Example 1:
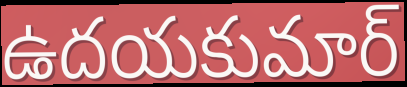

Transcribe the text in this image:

ఉదయకుమార్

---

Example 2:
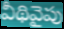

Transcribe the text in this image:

వీథివైపు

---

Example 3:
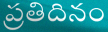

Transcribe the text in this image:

ప్రతిదినం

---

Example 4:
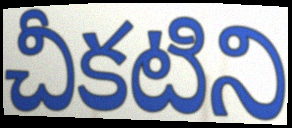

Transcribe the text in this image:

చీకటిని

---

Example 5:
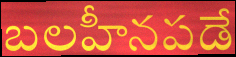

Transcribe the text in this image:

బలహీనపడే